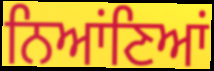
ਨਿਆਂਣਿਆਂ